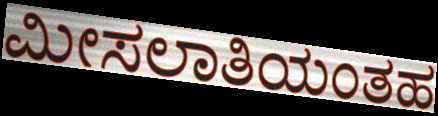
ಮೀಸಲಾತಿಯಂತಹ